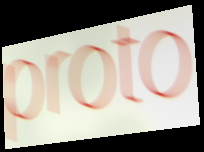
proto